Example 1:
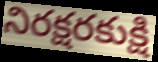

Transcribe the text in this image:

నిరక్షరకుక్షి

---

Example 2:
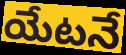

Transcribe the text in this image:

యేటనే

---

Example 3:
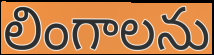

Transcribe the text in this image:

లింగాలను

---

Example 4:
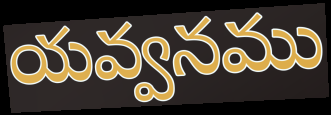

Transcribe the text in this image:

యవ్వనము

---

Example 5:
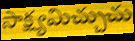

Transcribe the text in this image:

సాక్ష్యమిచ్చుచు